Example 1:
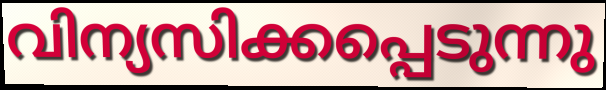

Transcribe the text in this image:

വിന്യസിക്കപ്പെടുന്നു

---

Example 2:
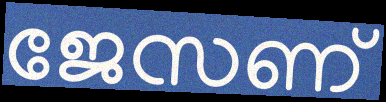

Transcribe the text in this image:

ജേസണ്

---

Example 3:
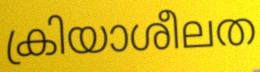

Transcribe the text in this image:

ക്രിയാശീലത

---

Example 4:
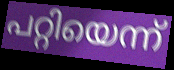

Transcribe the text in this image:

പറ്റിയെന്ന്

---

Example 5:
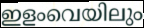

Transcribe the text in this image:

ഇളംവെയിലും